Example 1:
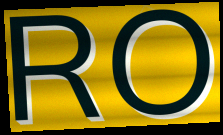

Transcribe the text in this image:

RO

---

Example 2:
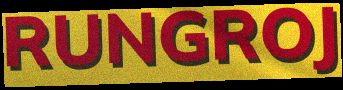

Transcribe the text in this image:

RUNGROJ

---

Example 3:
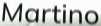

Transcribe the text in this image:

Martino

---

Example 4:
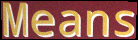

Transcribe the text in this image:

Means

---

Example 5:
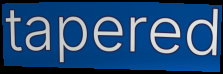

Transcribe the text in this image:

tapered